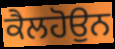
ਕੈਲਹੋਉਨ